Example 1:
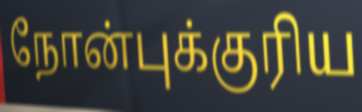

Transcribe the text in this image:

நோன்புக்குரிய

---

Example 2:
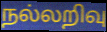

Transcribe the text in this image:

நல்லறிவு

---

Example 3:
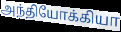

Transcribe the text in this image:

அந்தியோக்கியா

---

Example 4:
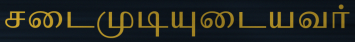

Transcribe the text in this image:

சடைமுடியுடையவர்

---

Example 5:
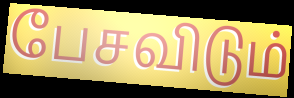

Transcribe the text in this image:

பேசவிடும்